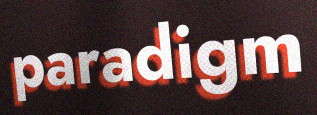
paradigm